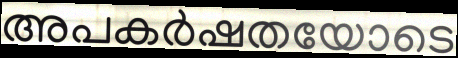
അപകർഷതയോടെ